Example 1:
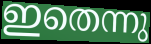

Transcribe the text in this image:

ഇതെന്നു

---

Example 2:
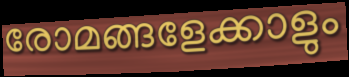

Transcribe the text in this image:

രോമങ്ങളേക്കാളും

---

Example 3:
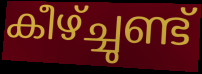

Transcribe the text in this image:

കീഴ്ച്ചുണ്ട്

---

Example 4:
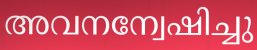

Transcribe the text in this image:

അവനന്വേഷിച്ചു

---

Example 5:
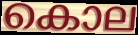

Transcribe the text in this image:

കൊല